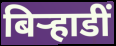
बिर्‍हाडीं